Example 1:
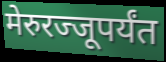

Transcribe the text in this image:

मेरुरज्जूपर्यंत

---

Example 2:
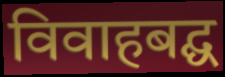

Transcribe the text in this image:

विवाहबद्घ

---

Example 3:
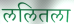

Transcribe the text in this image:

ललितला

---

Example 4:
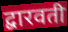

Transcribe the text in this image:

द्वारवती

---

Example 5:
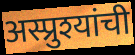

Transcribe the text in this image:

अस्प्रुश्यांची